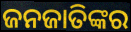
ଜନଜାତିଙ୍କର